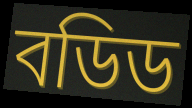
বডিড